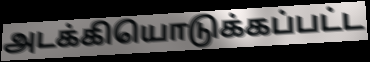
அடக்கியொடுக்கப்பட்ட